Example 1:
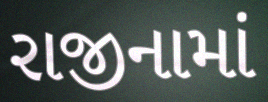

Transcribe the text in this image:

રાજીનામાં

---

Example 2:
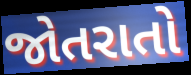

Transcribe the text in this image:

જોતરાતો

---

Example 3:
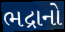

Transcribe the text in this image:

ભદ્રાનો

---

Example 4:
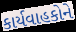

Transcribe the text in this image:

કાર્યવાહકોને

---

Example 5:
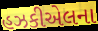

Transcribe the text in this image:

હઝકીએલના